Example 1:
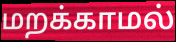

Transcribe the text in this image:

மறக்காமல்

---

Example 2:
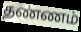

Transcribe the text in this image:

தண்ணம்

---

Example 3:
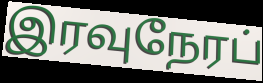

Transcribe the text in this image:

இரவுநேரப்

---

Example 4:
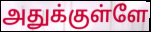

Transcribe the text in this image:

அதுக்குள்ளே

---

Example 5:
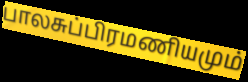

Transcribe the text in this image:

பாலசுப்பிரமணியமும்